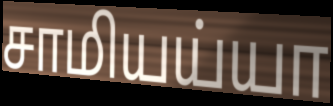
சாமியய்யா